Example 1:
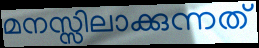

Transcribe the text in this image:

മനസ്സിലാക്കുന്നത്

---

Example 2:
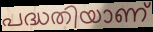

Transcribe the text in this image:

പദ്ധതിയാണ്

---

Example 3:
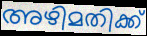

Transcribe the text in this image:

അഴിമതിക്ക്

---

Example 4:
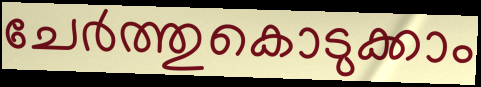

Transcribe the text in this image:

ചേർത്തുകൊടുക്കാം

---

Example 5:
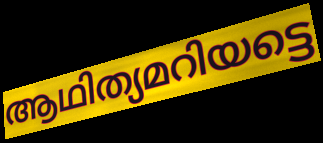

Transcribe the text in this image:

ആഥിത്യമറിയട്ടെ